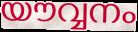
യൗവ്വനം